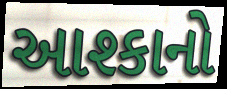
આશ્કાનો